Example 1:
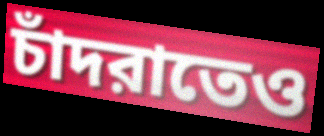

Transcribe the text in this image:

চাঁদরাতেও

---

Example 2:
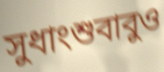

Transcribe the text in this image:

সুধাংশুবাবুও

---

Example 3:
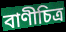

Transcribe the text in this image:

বাণীচিত্র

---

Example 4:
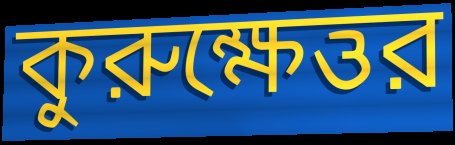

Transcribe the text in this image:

কুরুক্ষেত্তর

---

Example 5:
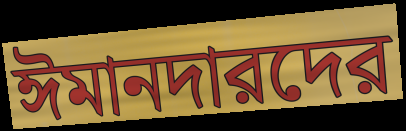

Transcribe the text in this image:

ঈমানদারদের